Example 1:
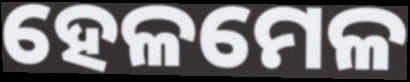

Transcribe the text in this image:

ହେଳମେଳ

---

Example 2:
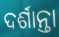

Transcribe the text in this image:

ଦର୍ଶାନ୍ତା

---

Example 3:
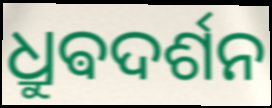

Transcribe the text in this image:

ଧ୍ରୁଵଦର୍ଶନ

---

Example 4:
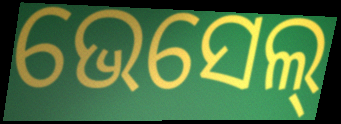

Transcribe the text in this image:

ଭେସେଲ୍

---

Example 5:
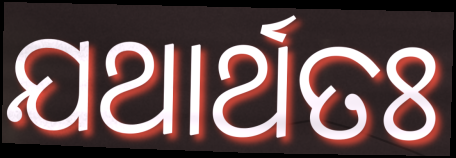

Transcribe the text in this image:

ଯଥାର୍ଥତଃ